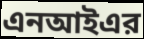
এনআইএর